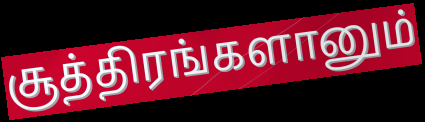
சூத்திரங்களானும்